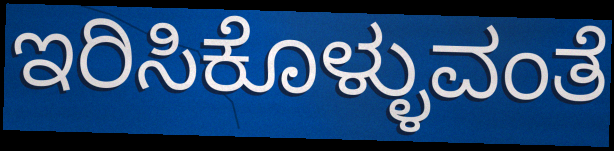
ಇರಿಸಿಕೊಳ್ಳುವಂತೆ